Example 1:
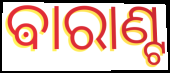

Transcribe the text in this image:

ଵାରାଣ୍ଟ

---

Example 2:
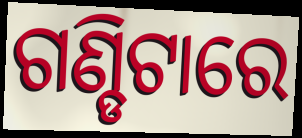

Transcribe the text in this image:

ଗଣ୍ଡିଟାରେ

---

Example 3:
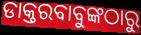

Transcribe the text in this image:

ଡାକ୍ତରବାବୁଙ୍କଠାରୁ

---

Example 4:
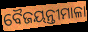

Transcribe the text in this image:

ବୈଜୟନ୍ତୀମାଳା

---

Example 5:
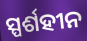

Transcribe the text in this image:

ସ୍ପର୍ଶହୀନ